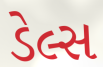
ડેલ્સ